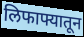
लिफाफ्यातून